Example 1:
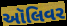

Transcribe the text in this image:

ઑલિવર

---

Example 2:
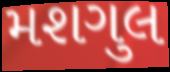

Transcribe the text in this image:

મશગુલ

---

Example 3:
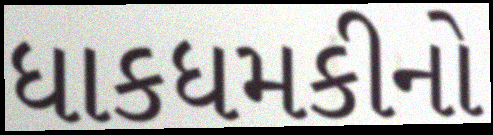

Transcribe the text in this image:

ધાકધમકીનો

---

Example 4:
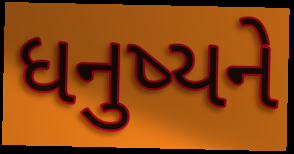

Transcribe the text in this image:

ધનુષ્યને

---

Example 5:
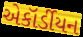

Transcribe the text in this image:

એકૉર્ડીયન